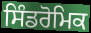
ਸਿੰਡਰੋਮਿਕ